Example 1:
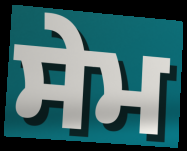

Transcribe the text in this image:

ਸੇਮ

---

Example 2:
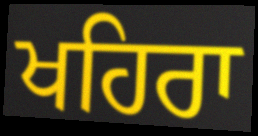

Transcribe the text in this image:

ਖਹਿਰਾ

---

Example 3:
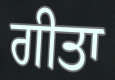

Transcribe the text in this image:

ਗੀਤਾ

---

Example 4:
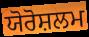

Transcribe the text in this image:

ਯੋਰੋਸ਼ਲਮ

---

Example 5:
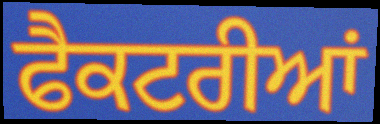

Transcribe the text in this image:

ਫੈਕਟਰੀਆਂ